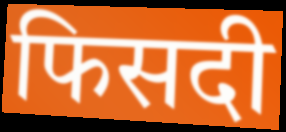
फिसदी